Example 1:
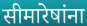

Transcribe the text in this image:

सीमारेषांना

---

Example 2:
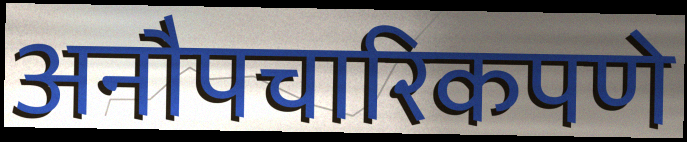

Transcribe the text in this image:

अनौपचारिकपणे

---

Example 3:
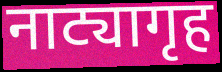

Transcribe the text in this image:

नाट्यागृह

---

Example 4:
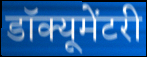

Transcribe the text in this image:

डॉक्यूमेंटरी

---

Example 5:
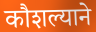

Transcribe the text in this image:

कौशल्याने